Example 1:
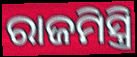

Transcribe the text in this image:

ରାଜମିସ୍ତ୍ରି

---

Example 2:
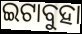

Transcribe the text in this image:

ଇଟାବୁହା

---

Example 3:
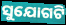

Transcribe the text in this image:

ସୁଯୋଗଟି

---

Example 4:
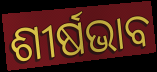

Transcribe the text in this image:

ଶୀର୍ଷଭାବ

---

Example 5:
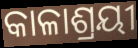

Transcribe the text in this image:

କାଳାଶ୍ରୟୀ